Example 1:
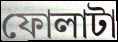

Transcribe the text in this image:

ফোলাটা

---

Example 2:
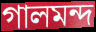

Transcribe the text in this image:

গালমন্দ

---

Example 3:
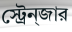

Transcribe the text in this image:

স্ট্রেন্জার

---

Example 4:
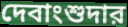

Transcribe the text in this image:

দেবাংশুদার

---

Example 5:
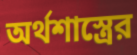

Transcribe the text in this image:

অর্থশাস্ত্রের